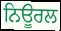
ਨਿਊਰਲ